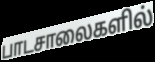
பாடசாலைகளில்